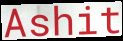
Ashit